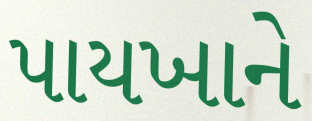
પાયખાને